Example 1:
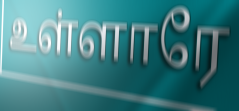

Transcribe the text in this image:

உள்ளாரே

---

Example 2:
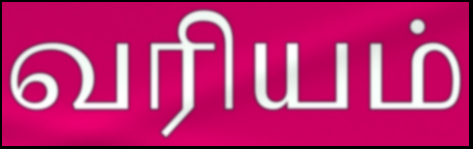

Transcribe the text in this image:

வரியம்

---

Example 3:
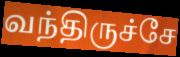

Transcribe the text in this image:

வந்திருச்சே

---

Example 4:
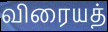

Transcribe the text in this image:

விரையத்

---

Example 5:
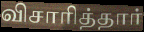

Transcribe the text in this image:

விசாரித்தார்